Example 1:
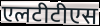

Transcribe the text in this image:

एलटीटीएस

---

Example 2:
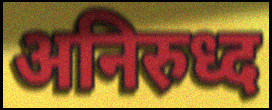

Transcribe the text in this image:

अनिरुध्द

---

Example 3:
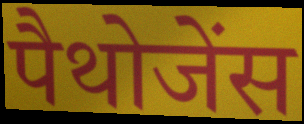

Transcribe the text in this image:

पैथोजेंस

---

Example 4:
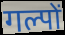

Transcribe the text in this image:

गल्पों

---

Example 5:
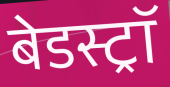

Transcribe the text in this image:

बेडस्ट्रॉ